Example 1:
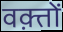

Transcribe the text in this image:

वक़्तों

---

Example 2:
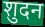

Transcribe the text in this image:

शुदन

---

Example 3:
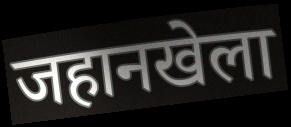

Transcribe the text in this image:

जहानखेला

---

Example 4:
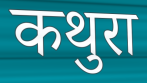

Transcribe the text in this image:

कथुरा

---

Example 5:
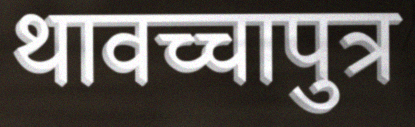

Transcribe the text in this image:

थावच्चापुत्र